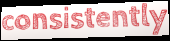
consistently